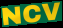
NCV